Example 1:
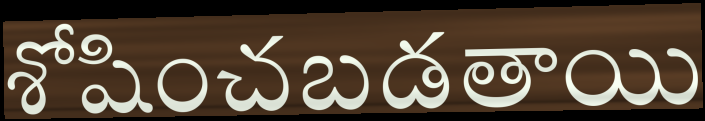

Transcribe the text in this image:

శోషించబడతాయి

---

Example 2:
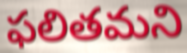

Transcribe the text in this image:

ఫలితమని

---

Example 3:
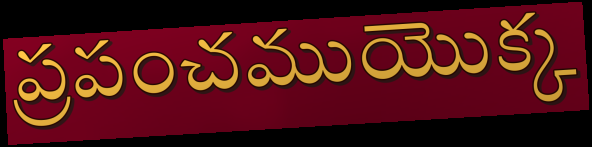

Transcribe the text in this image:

ప్రపంచముయొక్క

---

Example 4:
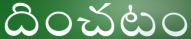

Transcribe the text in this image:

దించటం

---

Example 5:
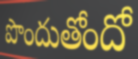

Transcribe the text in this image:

పొందుతోందో